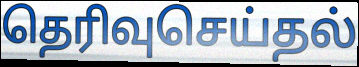
தெரிவுசெய்தல்